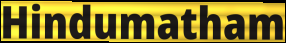
Hindumatham